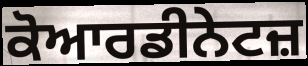
ਕੋਆਰਡੀਨੇਟਜ਼